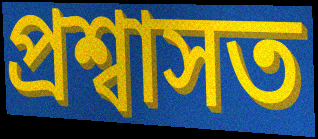
প্ৰশ্বাসত